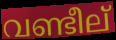
വണ്ടീല്